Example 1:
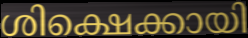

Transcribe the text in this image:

ശിക്ഷെക്കായി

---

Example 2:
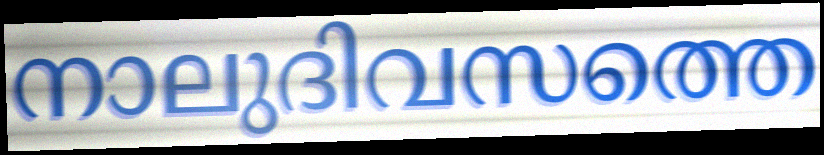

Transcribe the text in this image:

നാലുദിവസത്തെ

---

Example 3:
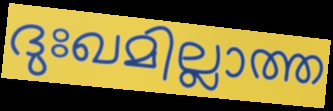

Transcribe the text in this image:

ദുഃഖമില്ലാത്ത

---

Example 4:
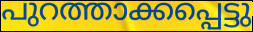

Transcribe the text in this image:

പുറത്താക്കപ്പെട്ടു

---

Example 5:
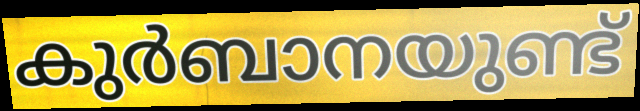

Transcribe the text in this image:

കുർബാനയുണ്ട്